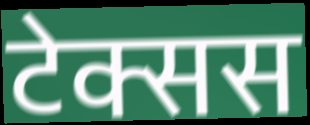
टेक्सस